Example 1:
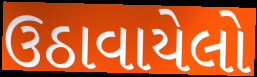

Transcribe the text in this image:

ઉઠાવાયેલો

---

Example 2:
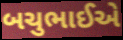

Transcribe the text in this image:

બચુભાઈએ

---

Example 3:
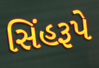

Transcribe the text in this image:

સિંહરૂપે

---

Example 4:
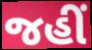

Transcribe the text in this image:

જહીં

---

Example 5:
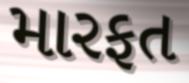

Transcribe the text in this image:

મારફત